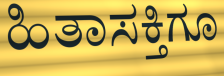
ಹಿತಾಸಕ್ತಿಗೂ